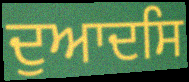
ਦੁਆਦਸਿ